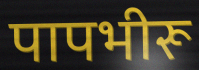
पापभीरू